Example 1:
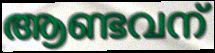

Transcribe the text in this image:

ആണ്ടവന്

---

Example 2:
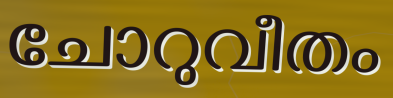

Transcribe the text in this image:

ചോറുവീതം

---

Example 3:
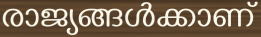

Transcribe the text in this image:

രാജ്യങ്ങൾക്കാണ്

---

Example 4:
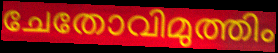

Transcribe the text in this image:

ചേതോവിമുത്തിം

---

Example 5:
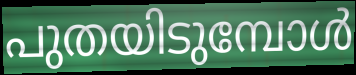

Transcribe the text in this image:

പുതയിടുമ്പോൾ